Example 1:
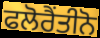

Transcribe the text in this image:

ਫਲੋਰੈਂਤੀਨੋ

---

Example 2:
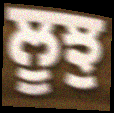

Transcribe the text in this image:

ਲੂਝੁ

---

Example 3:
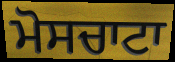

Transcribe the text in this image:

ਮੋਸਚਾਟਾ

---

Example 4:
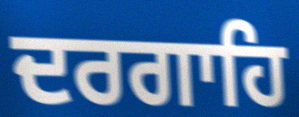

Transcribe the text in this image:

ਦਰਗਾਹਿ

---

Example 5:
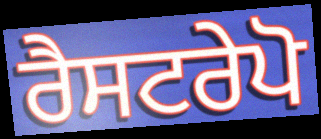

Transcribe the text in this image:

ਰੈਸਟਰੇਪੋ